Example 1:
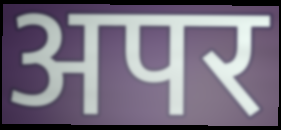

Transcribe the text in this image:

अपर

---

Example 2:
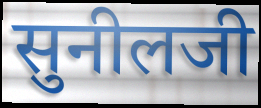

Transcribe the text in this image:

सुनीलजी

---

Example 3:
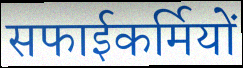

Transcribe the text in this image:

सफाईकर्मियों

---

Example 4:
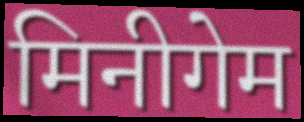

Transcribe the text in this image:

मिनीगेम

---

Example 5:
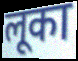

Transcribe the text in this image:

लूका